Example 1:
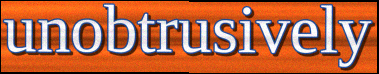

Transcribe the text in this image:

unobtrusively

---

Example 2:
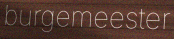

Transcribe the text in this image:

burgemeester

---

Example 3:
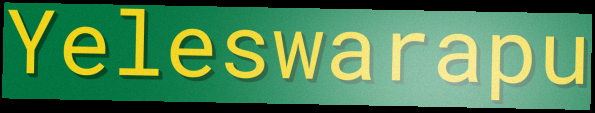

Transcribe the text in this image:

Yeleswarapu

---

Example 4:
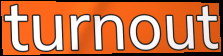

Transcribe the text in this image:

turnout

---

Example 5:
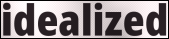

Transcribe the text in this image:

idealized